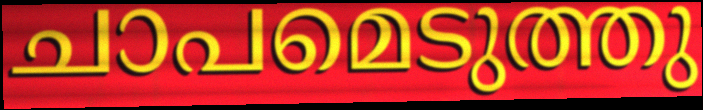
ചാപമെടുത്തു